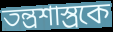
তন্ত্রশাস্ত্রকে